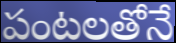
పంటలతోనే